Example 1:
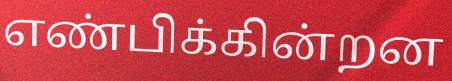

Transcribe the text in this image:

எண்பிக்கின்றன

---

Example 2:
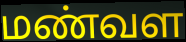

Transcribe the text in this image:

மண்வள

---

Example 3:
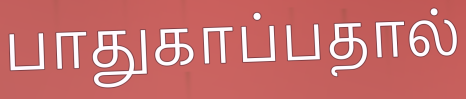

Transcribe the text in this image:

பாதுகாப்பதால்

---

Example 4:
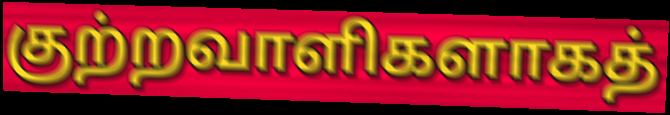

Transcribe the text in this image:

குற்றவாளிகளாகத்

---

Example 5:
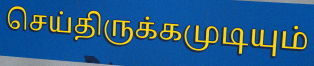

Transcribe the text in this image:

செய்திருக்கமுடியும்